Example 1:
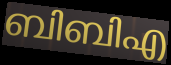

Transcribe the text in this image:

ബിബിഎ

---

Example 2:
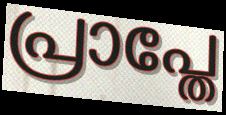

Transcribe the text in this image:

പ്രാപ്തേ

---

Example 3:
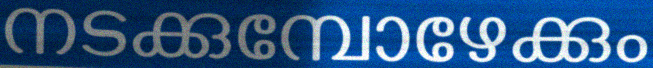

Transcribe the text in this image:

നടക്കുമ്പോഴേക്കും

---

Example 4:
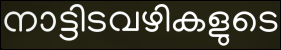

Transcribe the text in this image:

നാട്ടിടവഴികളുടെ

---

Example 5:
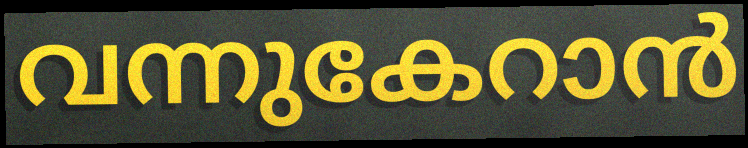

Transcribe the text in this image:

വന്നുകേറാൻ